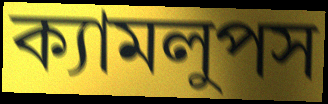
ক্যামলুপস